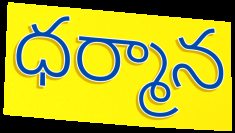
ధర్మాన